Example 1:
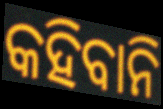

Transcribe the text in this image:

କହିବାନି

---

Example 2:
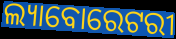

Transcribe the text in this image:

ଲ୍ୟାବୋରେଟରୀ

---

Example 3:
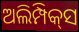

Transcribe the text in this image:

ଅଲିମ୍ପିକ୍‌ସ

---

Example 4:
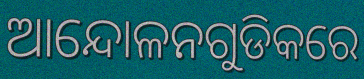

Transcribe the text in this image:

ଆନ୍ଦୋଳନଗୁଡିକରେ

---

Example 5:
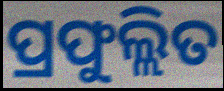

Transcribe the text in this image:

ପ୍ରଫୁଲ୍ଲିତ